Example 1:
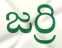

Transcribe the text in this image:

జర్రి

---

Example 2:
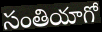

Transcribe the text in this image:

సంతియాగో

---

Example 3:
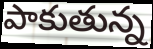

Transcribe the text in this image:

పాకుతున్న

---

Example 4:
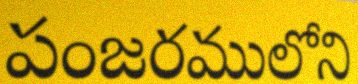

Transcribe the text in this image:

పంజరములోని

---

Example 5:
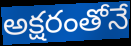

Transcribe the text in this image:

అక్షరంతోనే